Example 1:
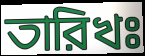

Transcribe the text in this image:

তারিখঃ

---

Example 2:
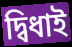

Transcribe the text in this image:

দ্বিধাই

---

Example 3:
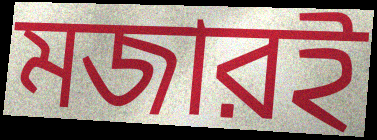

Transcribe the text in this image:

মজারই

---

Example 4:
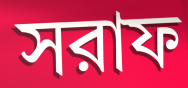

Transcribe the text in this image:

সরাফ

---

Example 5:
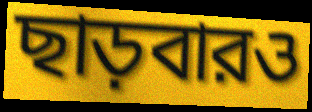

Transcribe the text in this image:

ছাড়বারও